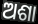
ଅଶା